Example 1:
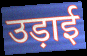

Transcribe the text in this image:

उड़ाई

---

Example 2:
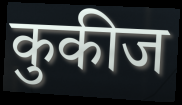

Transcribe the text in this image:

कुकीज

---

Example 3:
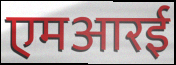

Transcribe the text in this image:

एमआरई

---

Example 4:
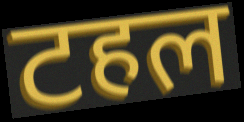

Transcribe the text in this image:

टहल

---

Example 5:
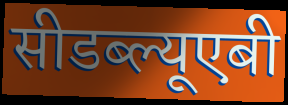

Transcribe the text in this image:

सीडब्ल्यूएबी